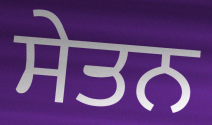
ਸੇਤਨ